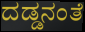
ದಡ್ಡನಂತೆ